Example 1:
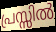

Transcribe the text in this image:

പ്രസ്സിൽ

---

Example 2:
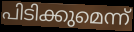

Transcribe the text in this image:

പിടിക്കുമെന്ന്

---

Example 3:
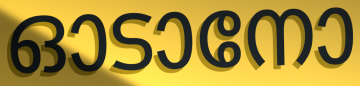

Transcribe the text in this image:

ഓടാനോ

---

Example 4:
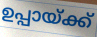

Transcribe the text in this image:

ഉപ്പായ്ക്ക്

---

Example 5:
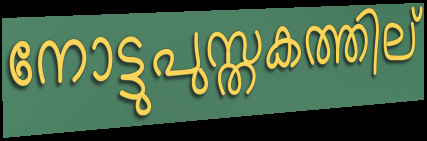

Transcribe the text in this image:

നോട്ടുപുസ്തകത്തില്